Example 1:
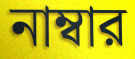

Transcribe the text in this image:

নাম্বার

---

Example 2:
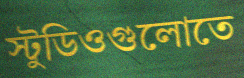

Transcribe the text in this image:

স্টুডিওগুলোতে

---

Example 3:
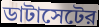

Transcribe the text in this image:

ডাটাসেটের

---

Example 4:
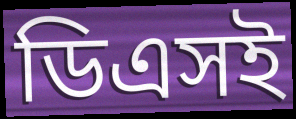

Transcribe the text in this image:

ডিএসই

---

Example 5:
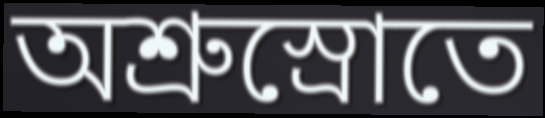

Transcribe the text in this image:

অশ্রুস্রোতে